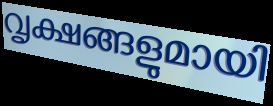
വൃക്ഷങ്ങളുമായി